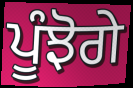
ਪੂੰਝੋਗੇ